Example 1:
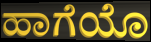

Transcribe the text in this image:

ಹಾಗೆಯೊ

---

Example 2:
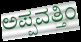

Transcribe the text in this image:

ಅಪ್ಪವತ್ತಿಂ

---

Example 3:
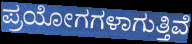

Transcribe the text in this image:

ಪ್ರಯೋಗಗಳಾಗುತ್ತಿವೆ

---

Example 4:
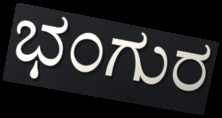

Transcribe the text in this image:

ಭಂಗುರ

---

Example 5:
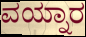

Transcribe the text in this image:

ವಯ್ನಾರ